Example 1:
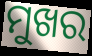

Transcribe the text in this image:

ମୁଖର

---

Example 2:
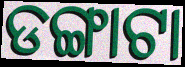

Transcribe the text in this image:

ଡଙ୍ଗାଟା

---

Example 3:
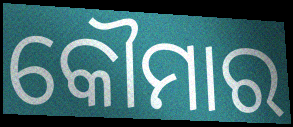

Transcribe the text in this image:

କୌମାର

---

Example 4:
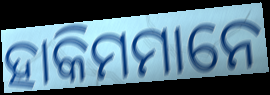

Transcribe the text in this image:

ହାକିମମାନେ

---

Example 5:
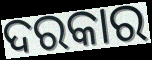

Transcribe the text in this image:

ଦରକାର